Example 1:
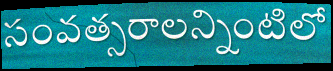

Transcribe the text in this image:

సంవత్సరాలన్నింటిలో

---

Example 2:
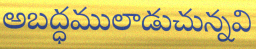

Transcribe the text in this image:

అబద్ధములాడుచున్నవి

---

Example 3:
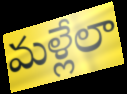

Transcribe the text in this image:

మళ్లేలా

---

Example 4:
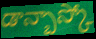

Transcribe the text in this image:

డాన్బాస్కో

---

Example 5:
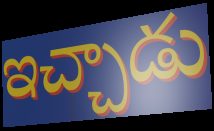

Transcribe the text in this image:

ఇచ్చాడు